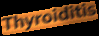
Thyroiditis